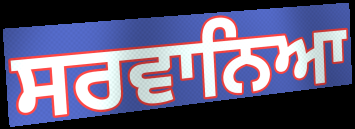
ਸਰਵਾਨਿਆ